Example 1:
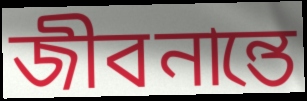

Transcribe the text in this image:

জীবনান্তে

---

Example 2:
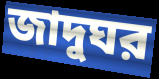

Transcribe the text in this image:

জাদুঘর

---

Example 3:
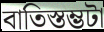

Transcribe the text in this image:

বাতিস্তম্ভটা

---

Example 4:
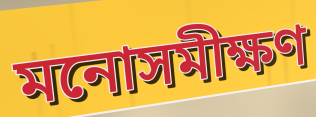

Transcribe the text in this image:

মনোসমীক্ষণ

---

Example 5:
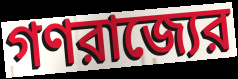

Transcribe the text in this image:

গণরাজ্যের